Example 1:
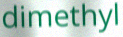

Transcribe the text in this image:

dimethyl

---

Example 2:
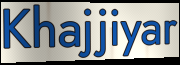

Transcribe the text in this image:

Khajjiyar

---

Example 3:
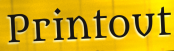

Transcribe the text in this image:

Printout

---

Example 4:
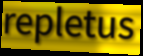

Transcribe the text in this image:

repletus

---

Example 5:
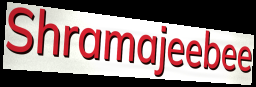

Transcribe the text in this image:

Shramajeebee